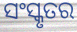
ସଂସ୍କୃତର